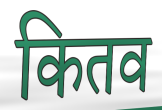
कितव